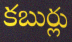
కబుర్లు